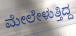
ಮೇಲೇಳುತ್ತಿದ್ದ